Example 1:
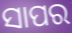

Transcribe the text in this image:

ସାପର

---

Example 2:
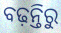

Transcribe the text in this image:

ବଢ଼ନ୍ତିରୁ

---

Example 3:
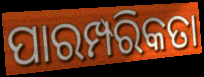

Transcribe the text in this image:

ପାରମ୍ପରିକତା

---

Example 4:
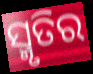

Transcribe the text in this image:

ସ୍ମୃତିର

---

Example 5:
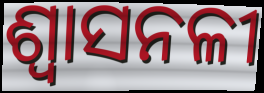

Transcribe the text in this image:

ଶ୍ଵାସନଳୀ